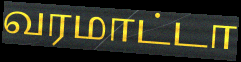
வரமாட்டா